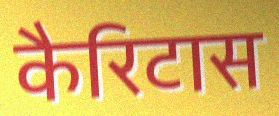
कैरिटास